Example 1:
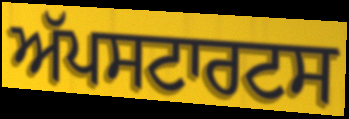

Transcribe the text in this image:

ਅੱਪਸਟਾਰਟਸ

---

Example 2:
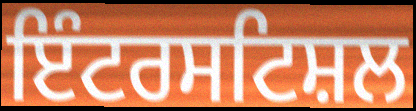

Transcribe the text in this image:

ਇੰਟਰਸਟਿਸ਼ਲ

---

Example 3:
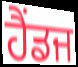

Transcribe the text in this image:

ਹੈਂਡਜ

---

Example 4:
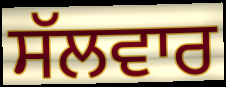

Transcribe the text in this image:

ਸੱਲਵਾਰ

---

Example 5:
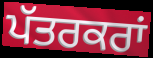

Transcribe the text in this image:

ਪੱਤਰਕਰਾਂ